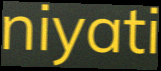
niyati